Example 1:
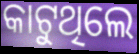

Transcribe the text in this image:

କାଟୁଥିଲେ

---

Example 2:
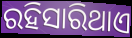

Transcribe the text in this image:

ରହିସାରିଥାଏ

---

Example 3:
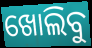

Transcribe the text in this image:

ଖୋଲିବୁ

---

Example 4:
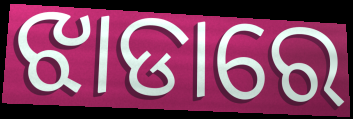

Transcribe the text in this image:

ଝାଡାରେ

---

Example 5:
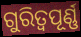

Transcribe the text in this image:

ଗୁରିତ୍ୱପୂର୍ଣ୍ଣ